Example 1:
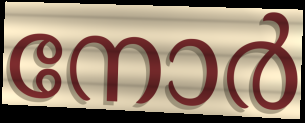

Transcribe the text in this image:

നോർ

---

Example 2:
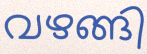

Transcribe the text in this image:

വഴങ്ങി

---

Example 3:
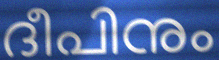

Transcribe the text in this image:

ദീപിനും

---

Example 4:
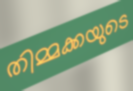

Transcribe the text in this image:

തിമ്മക്കയുടെ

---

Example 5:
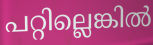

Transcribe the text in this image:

പറ്റില്ലെങ്കിൽ